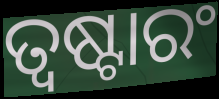
ତ୍ୱଷ୍ଟାରଂ